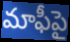
మాఫీపై